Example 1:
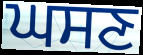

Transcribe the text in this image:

ਘਸਣ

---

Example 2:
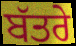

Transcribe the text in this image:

ਬੱਤਰੇ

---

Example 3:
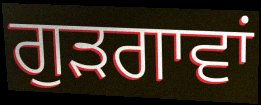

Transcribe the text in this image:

ਗੁੜਗਾਵਾਂ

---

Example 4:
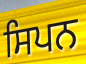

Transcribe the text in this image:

ਸਿਪਨ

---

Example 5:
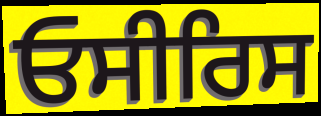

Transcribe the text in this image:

ਓਸੀਰਿਸ